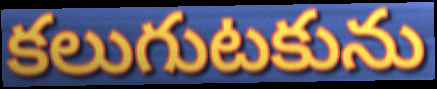
కలుగుటకును